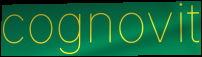
cognovit